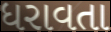
ધરાવતા